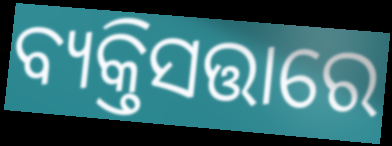
ବ୍ୟକ୍ତିସତ୍ତାରେ